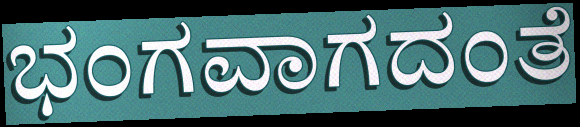
ಭಂಗವಾಗದಂತೆ